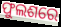
ଫୁଲଶରେ